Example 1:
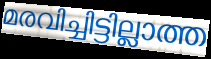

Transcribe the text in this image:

മരവിച്ചിട്ടില്ലാത്ത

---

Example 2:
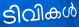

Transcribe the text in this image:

ടിവികൾ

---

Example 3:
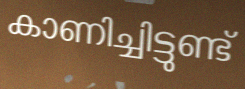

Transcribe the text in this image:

കാണിച്ചിട്ടുണ്ട്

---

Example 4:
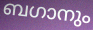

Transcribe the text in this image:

ബഗാനും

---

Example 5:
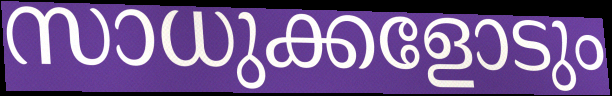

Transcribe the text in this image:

സാധുക്കളോടും